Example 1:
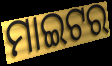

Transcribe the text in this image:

ମାଇଟର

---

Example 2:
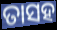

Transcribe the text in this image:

ତାସହ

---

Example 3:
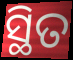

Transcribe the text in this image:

ସ୍ଥିତ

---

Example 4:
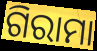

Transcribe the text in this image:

ଗିରାମା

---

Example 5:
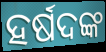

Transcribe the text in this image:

ହର୍ଷଦଙ୍କ